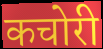
कचोरी